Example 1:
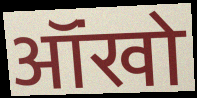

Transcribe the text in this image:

ऑंखो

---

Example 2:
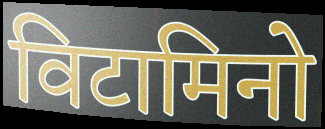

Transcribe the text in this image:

विटामिनो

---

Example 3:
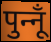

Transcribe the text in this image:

पुन्नूँ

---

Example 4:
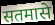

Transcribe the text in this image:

सतमासे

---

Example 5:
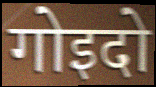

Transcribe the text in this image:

गोइदो